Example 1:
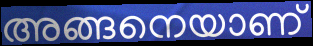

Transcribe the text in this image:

അങ്ങനെയാണ്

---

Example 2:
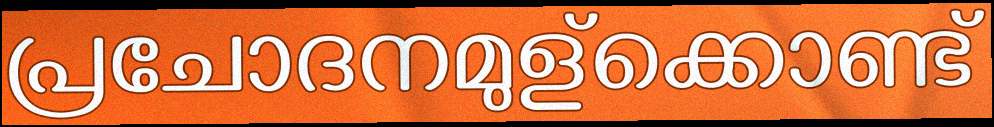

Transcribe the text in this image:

പ്രചോദനമുള്ക്കൊണ്ട്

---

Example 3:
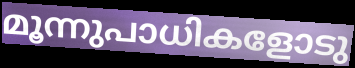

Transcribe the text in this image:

മൂന്നുപാധികളോടു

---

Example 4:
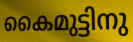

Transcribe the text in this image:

കൈമുട്ടിനു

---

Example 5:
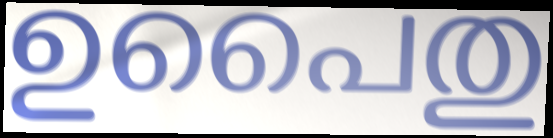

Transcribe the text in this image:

ഉപൈതു